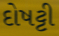
દોષટ્ટી